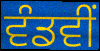
ਵੰਡਵੀਂ